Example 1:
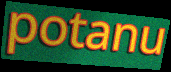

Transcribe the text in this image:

potanu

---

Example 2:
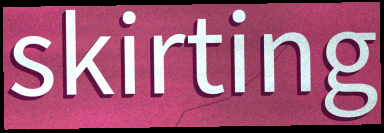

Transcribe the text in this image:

skirting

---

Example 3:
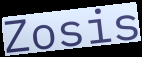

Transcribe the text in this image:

Zosis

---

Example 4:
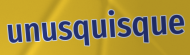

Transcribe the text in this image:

unusquisque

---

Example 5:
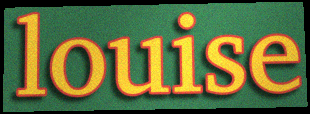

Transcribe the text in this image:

louise